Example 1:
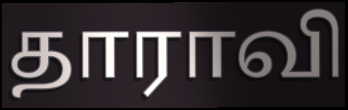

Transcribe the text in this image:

தாராவி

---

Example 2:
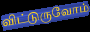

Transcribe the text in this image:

விட்டுருவோம்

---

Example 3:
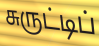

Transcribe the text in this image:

சுருட்டிப்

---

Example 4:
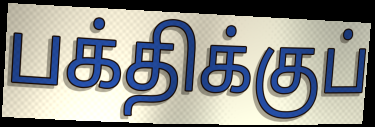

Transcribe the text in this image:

பக்திக்குப்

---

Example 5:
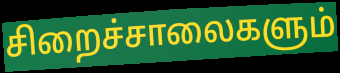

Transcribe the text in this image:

சிறைச்சாலைகளும்